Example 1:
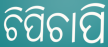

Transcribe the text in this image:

ଚିପିଚାପି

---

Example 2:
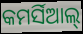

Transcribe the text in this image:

କମର୍ସିଆଲ୍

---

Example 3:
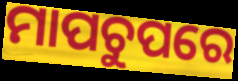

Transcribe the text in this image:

ମାପଚୁପରେ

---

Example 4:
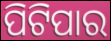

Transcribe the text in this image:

ପିଟିପାର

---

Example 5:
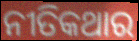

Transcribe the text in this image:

ନୀତିକଥାର